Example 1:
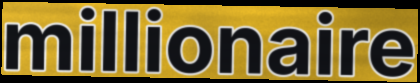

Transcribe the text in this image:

millionaire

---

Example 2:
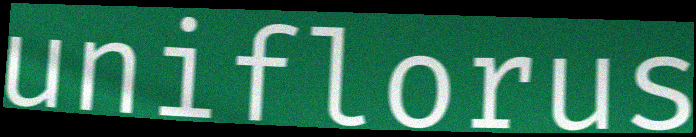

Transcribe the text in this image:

uniflorus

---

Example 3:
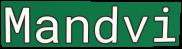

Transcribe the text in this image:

Mandvi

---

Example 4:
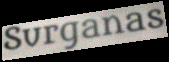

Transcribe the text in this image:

Surganas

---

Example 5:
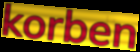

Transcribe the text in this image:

korben